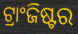
ଟ୍ରାଂଜିଷ୍ଟର